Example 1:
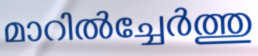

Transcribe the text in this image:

മാറിൽച്ചേർത്തു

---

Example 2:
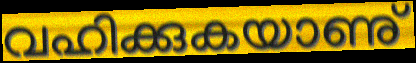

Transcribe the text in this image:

വഹിക്കുകയാണു്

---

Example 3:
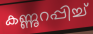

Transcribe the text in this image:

കണ്ണുറപ്പിച്ച്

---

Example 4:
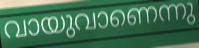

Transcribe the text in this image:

വായുവാണെന്നു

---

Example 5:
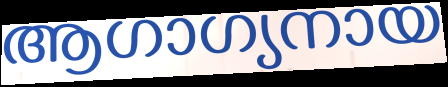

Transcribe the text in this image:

ആഗാഗ്യനായ